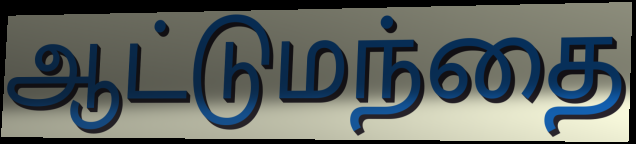
ஆட்டுமந்தை